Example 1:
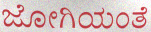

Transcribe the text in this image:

ಜೋಗಿಯಂತೆ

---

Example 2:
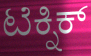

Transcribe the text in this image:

ಟೆಕ್ನಿಕ್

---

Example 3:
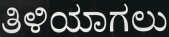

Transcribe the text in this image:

ತಿಳಿಯಾಗಲು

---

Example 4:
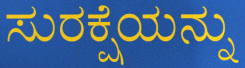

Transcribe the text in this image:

ಸುರಕ್ಷೆಯನ್ನು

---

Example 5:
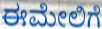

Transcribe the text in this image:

ಈಮೇಲಿಗೆ